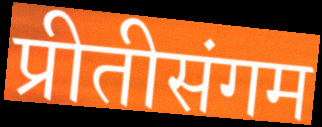
प्रीतीसंगम